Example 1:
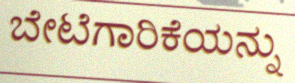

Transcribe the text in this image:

ಬೇಟೆಗಾರಿಕೆಯನ್ನು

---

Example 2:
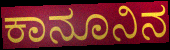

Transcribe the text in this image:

ಕಾನೂನಿನ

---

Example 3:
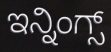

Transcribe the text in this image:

ಇನ್ನಿಂಗ್ಸ್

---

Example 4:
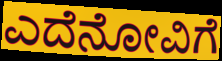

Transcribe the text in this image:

ಎದೆನೋವಿಗೆ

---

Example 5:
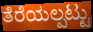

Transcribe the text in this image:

ತೆರೆಯಲ್ಪಟ್ಟು